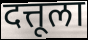
दत्तूला